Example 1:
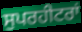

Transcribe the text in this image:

ਸੁਪਰਹੀਟਰਾਂ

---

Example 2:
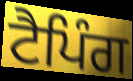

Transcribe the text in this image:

ਟੈਪਿੰਗ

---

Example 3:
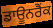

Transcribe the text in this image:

ਡਾਊਨਰੈਂਕ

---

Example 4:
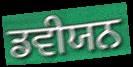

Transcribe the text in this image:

ਡਵੀਯਨ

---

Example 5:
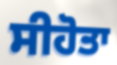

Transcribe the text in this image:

ਸੀਹੋਤਾ